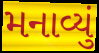
મનાવ્યું